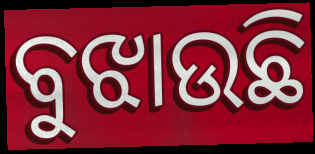
ବୁଝାଉଛି